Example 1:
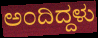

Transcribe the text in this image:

ಅಂದಿದ್ದಳು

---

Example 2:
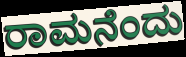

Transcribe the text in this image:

ರಾಮನೆಂದು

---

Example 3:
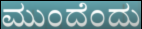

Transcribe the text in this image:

ಮುಂದೆಂದು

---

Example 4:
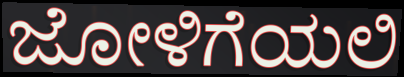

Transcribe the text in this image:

ಜೋಳಿಗೆಯಲಿ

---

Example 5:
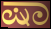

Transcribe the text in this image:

ಷಾ